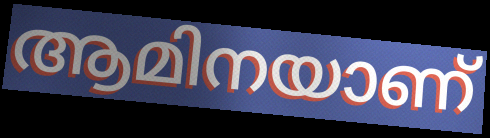
ആമിനയാണ്